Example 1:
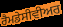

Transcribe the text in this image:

ਰੈਮਡੇਸੀਵੀਅਰ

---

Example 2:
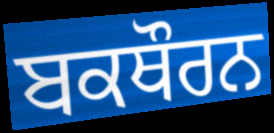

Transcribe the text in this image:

ਬਕਥੌਰਨ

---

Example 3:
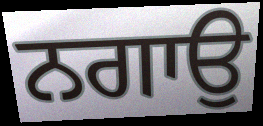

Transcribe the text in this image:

ਨਗਾਉ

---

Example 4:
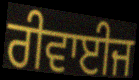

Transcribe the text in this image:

ਰੀਵਾਈਜ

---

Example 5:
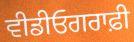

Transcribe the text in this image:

ਵੀਡੀਓਗਰਾਫ਼ੀ